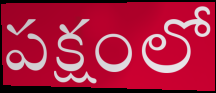
పక్షంలో